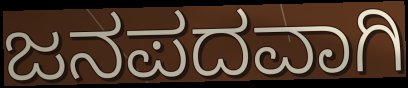
ಜನಪದವಾಗಿ